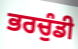
ਭਰਚੁੰਡੀ